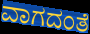
ವಾಗದಂತೆ